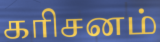
கரிசனம்